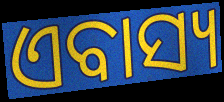
ଏବାସ୍ୟ